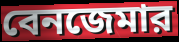
বেনজেমার